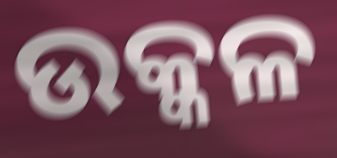
ଉକ୍କଳ